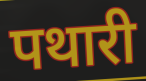
पथारी